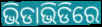
ଭିଡାଭିଡିରେ